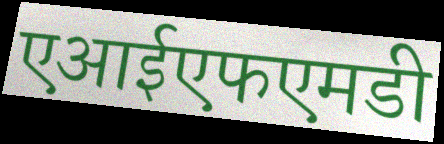
एआईएफएमडी